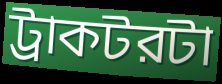
ট্রাকটরটা